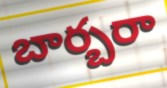
బార్బరా